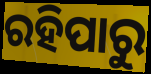
ରହିପାରୁ